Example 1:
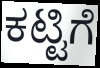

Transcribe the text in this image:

ಕಟ್ಟಿಗೆ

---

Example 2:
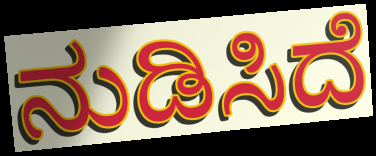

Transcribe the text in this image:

ನುಡಿಸಿದೆ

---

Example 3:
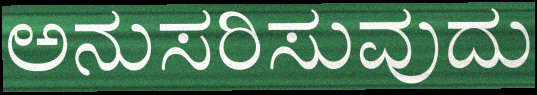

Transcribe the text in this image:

ಅನುಸರಿಸುವುದು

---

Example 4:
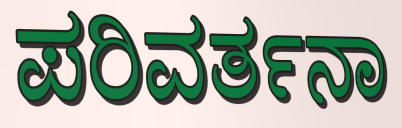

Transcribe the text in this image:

ಪರಿವರ್ತನಾ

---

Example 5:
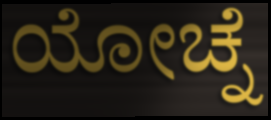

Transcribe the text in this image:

ಯೋಚ್ನೆ